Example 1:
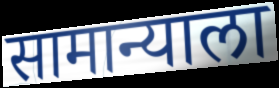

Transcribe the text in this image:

सामान्याला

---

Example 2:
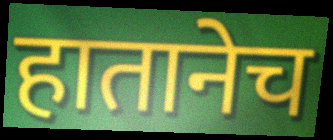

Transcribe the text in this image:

हातानेच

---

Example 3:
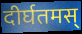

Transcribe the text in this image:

दीर्घतमस्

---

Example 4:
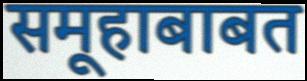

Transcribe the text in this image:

समूहाबाबत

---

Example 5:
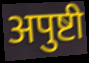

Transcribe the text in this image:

अपुष्टी